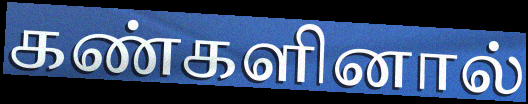
கண்களினால்